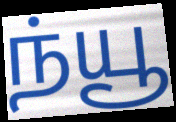
ந்யூ